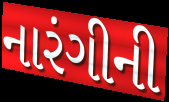
નારંગીની